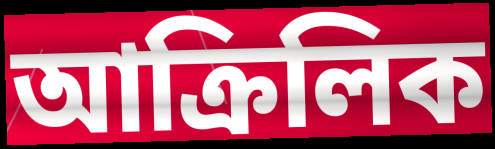
আক্ৰিলিক